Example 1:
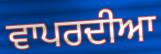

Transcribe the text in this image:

ਵਾਪਰਦੀਆ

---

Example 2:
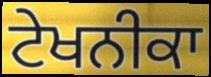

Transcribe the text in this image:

ਟੇਖਨੀਕਾ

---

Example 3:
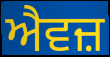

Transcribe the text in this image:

ਐਵਜ਼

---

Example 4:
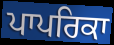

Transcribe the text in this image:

ਪਾਪਰਿਕਾ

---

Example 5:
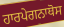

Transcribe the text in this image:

ਹਾਰਪੇਗਨਾਥੋਸ